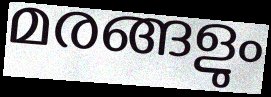
മരങ്ങളും